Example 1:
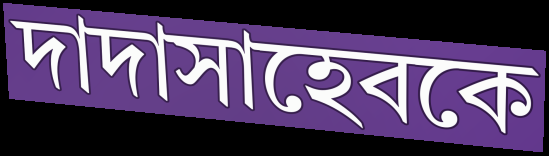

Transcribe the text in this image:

দাদাসাহেবকে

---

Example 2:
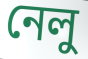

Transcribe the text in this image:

নেলু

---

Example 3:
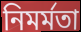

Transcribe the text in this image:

নিমর্মতা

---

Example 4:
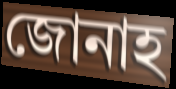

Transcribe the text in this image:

জোনাহ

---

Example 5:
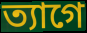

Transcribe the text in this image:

ত্যাগে